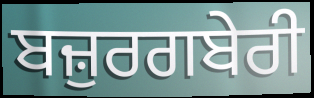
ਬਜ਼ੁਰਗਬੇਰੀ